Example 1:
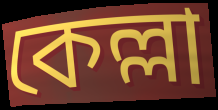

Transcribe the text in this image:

কেল্লা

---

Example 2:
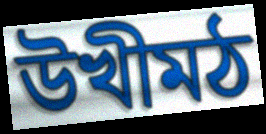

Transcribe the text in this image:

উখীমঠ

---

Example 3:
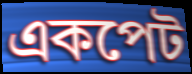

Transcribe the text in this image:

একপেট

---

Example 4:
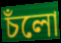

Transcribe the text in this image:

চঁলো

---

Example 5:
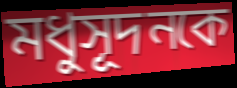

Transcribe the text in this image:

মধুসূদনকে